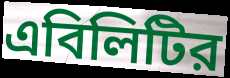
এবিলিটির